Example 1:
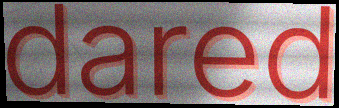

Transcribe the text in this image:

dared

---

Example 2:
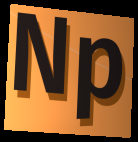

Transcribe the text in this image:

Np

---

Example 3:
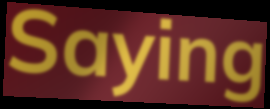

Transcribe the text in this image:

Saying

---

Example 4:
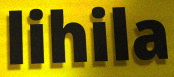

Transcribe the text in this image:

lihila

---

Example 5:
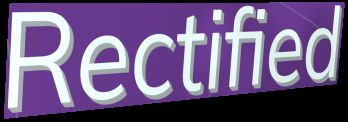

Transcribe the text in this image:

Rectified